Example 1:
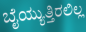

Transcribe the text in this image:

ಬೈಯ್ಯುತ್ತಿರಲಿಲ್ಲ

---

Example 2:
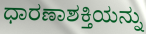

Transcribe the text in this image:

ಧಾರಣಾಶಕ್ತಿಯನ್ನು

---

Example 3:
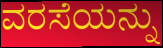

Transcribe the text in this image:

ವರಸೆಯನ್ನು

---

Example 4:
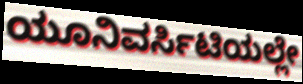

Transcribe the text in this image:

ಯೂನಿವರ್ಸಿಟಿಯಲ್ಲೇ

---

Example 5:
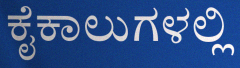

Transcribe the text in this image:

ಕೈಕಾಲುಗಳಲ್ಲಿ